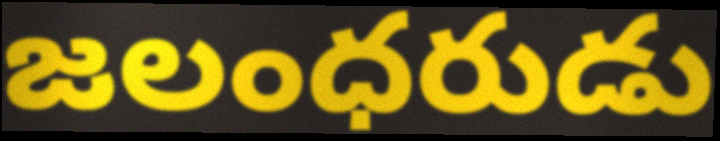
జలంధరుడు